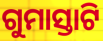
ଗୁମାସ୍ତାଟି